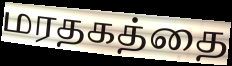
மரதகத்தை